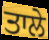
ਤਾਲੇ